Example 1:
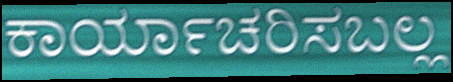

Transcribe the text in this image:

ಕಾರ್ಯಾಚರಿಸಬಲ್ಲ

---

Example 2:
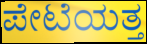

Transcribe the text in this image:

ಪೇಟೆಯತ್ತ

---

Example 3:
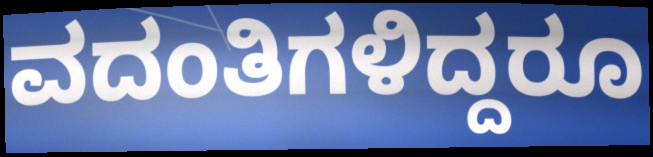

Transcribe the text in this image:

ವದಂತಿಗಳಿದ್ದರೂ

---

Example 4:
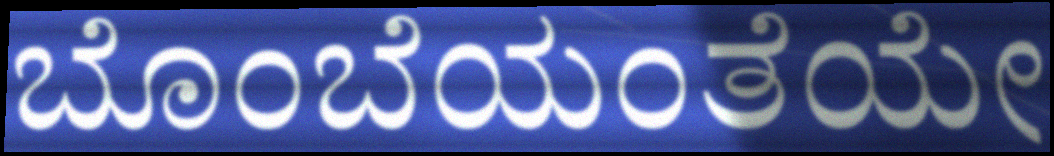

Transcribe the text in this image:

ಬೊಂಬೆಯಂತೆಯೇ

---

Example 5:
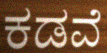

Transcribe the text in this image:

ಕಡವೆ